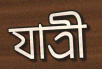
যাত্রী